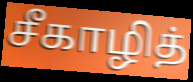
சீகாழித்